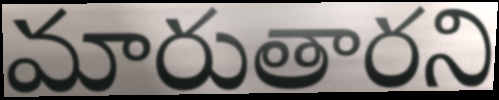
మారుతారని